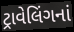
ટ્રાવેલિંગનાં